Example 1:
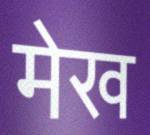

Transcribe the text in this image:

मेख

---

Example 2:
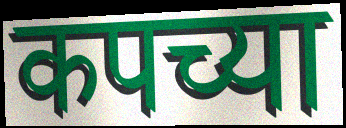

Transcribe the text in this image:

कपच्या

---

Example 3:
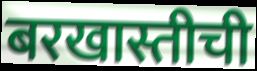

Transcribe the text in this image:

बरखास्तीची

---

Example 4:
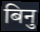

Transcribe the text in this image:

बिनु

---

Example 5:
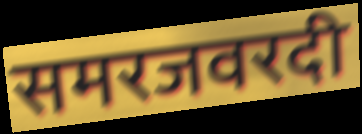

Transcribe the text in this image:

समरजवरदी